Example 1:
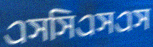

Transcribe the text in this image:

এসসিএসএস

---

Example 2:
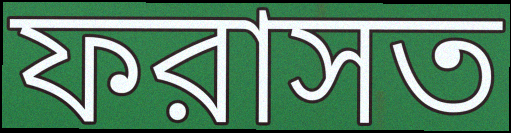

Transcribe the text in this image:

ফরাসত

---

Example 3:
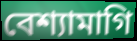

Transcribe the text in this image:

বেশ্যামাগি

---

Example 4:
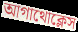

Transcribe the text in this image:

আগাথোক্লেস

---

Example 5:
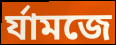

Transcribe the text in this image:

র্যামজে